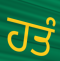
ਹਤੰ